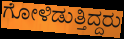
ಗೋಳಿಡುತ್ತಿದ್ದರು